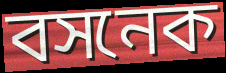
বসনেক